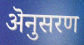
ऄनुसरण